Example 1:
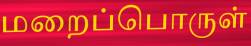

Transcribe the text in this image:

மறைப்பொருள்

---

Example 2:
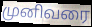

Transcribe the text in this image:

முனிவரை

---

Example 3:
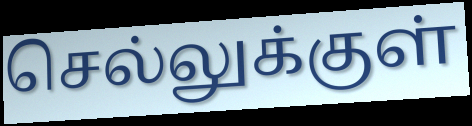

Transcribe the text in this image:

செல்லுக்குள்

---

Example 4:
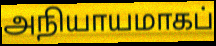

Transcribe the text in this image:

அநியாயமாகப்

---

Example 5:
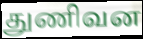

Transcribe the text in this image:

துணிவன